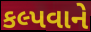
કલ્પવાને